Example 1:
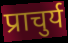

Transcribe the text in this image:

प्राचुर्य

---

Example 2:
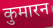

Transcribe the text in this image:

कुमारन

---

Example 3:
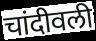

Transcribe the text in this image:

चांदीवली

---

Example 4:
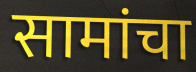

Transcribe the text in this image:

सामांचा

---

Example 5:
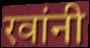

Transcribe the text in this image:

रवांनी